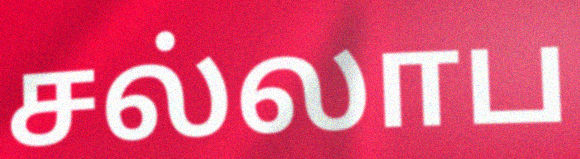
சல்லாப